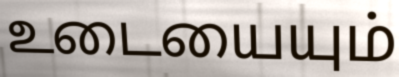
உடையையும்